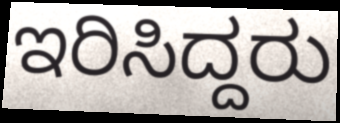
ಇರಿಸಿದ್ದರು